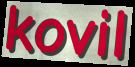
kovil